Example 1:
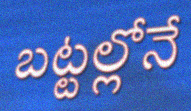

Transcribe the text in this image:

బట్టల్లోనే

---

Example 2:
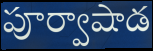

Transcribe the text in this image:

పూర్వాషాడ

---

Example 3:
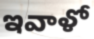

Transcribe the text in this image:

ఇవాళో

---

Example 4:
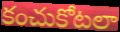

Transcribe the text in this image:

కంచుకోటలా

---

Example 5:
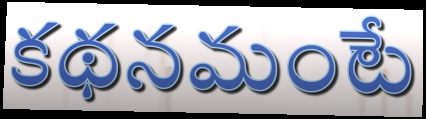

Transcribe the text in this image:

కథనమంటే